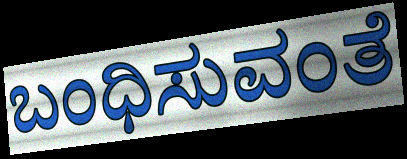
ಬಂಧಿಸುವಂತೆ